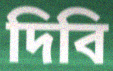
দিবি